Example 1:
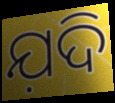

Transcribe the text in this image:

ଯ଼ଦି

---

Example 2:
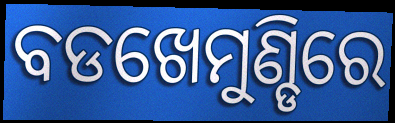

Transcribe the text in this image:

ବଡଖେମୁଣ୍ଡିରେ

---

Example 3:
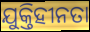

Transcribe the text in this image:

ଯୁକ୍ତିହୀନତା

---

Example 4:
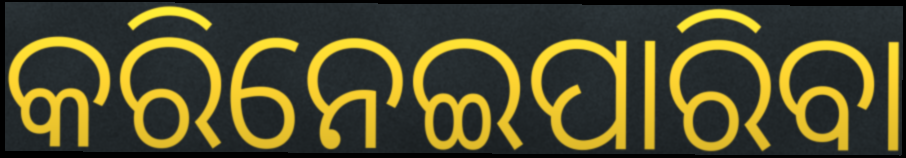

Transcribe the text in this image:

କରିନେଇପାରିବା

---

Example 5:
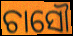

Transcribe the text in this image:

ଚାସୌ